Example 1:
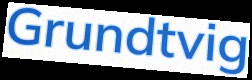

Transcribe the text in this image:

Grundtvig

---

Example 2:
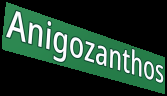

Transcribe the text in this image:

Anigozanthos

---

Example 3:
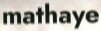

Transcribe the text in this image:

mathaye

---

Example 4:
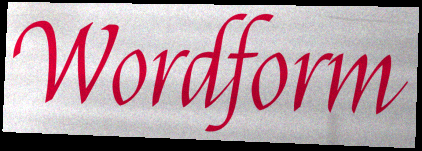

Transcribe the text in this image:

Wordform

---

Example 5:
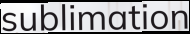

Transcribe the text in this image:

sublimation